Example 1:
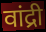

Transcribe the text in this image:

वांद्री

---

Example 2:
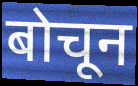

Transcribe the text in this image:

बोचून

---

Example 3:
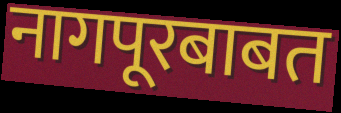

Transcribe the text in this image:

नागपूरबाबत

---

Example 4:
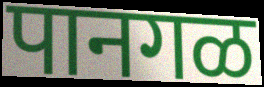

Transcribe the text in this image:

पानगळ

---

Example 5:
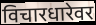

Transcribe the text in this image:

विचारधारेवर